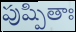
పుష్పితాః